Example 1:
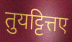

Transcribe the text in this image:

तुयट्टित्तए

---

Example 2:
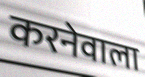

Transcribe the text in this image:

करनेवाला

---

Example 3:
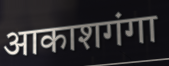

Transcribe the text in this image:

आकाशगंगा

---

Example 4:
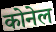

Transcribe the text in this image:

कोनेल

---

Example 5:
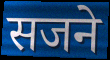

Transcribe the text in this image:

सजने